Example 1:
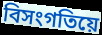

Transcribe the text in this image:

বিসংগতিয়ে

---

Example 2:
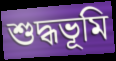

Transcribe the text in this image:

শুদ্ধভূমি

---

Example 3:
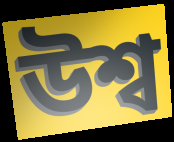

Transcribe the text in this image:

উশ্ব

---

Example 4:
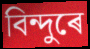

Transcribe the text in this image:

বিন্দুৰে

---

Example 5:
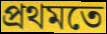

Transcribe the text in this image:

প্ৰথমতে